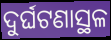
ଦୁର୍ଘଟଣାସ୍ଥଳ